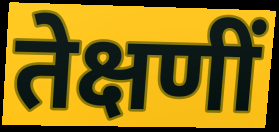
तेक्षणीं